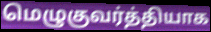
மெழுகுவர்த்தியாக